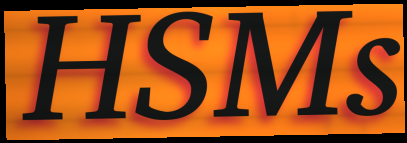
HSMs